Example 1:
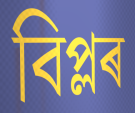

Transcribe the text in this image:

বিপ্লৰ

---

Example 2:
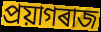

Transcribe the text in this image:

প্ৰয়াগৰাজ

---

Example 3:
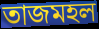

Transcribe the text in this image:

তাজমহল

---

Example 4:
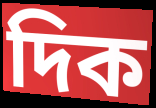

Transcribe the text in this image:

দিক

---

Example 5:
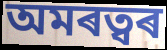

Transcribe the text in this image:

অমৰত্বৰ